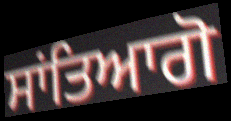
ਸਾਂਤਿਆਗੋ